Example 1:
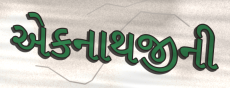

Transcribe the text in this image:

એકનાથજીની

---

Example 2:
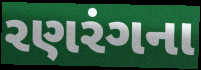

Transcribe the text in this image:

રણરંગના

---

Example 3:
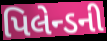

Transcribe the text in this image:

પિલેન્ડની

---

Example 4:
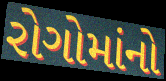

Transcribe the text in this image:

રોગોમાંનો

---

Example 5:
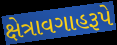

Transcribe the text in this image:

ક્ષેત્રાવગાહરૂપે